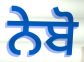
ਨੇਬੋ